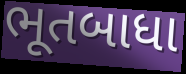
ભૂતબાધા